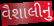
વૈશાલીનું